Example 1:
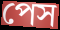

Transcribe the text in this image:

পেস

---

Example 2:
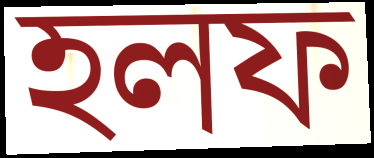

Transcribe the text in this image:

হলফ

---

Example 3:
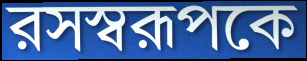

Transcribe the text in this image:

রসস্বরূপকে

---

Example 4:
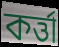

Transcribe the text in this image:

কর্ত্তা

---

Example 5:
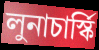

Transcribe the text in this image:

লুনাচার্স্কি